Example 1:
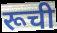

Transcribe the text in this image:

रूची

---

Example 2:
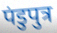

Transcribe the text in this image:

पंडुपुत्र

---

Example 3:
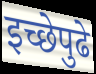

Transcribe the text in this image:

इच्छेपुढे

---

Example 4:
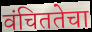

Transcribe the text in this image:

वंचिततेचा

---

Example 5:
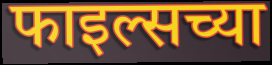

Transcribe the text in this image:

फाइल्सच्या